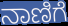
ನಾಣಿಗೆ